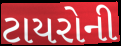
ટાયરોની